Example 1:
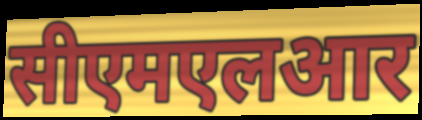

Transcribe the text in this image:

सीएमएलआर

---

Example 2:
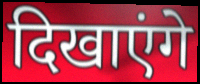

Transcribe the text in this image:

दिखाएंगे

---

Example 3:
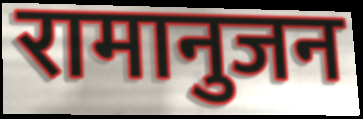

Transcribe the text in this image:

रामानुजन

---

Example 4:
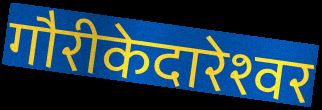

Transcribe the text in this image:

गौरीकेदारेश्वर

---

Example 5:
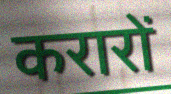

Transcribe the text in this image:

करारों